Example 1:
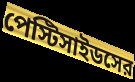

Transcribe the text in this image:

পেস্টিসাইডসের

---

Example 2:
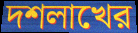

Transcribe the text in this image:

দশলাখের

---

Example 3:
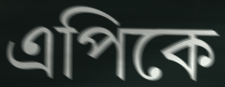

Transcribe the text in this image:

এপিকে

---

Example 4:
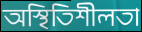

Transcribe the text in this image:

অস্থিতিশীলতা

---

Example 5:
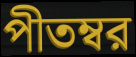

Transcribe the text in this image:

পীতম্বর